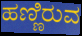
ಹಣ್ಣಿರುವ